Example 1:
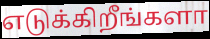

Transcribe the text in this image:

எடுக்கிறீங்களா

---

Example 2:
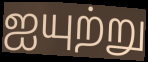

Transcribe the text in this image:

ஐயுற்று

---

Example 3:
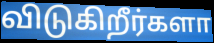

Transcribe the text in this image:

விடுகிறீர்களா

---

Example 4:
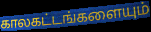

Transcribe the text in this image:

காலகட்டங்களையும்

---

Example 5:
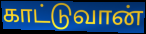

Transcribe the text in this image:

காட்டுவான்